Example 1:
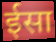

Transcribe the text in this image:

ईसा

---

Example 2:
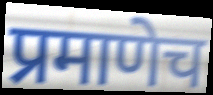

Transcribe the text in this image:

प्रमाणेच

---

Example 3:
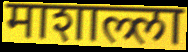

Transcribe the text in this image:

माशाल्ला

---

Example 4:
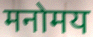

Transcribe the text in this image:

मनोमय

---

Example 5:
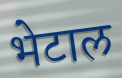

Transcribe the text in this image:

भेटाल